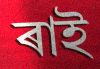
ৰাই